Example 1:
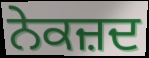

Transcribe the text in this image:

ਨੇਕਜ਼ਦ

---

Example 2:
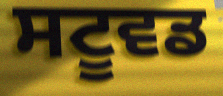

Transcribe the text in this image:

ਸਟੂਵਡ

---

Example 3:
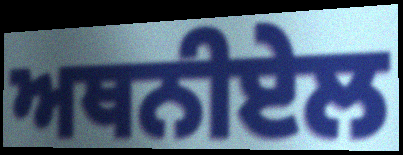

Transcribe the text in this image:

ਅਥਨੀਏਲ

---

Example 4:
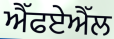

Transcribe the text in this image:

ਐੱਫਏਐੱਲ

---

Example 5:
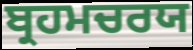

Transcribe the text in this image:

ਬ੍ਰਹਮਚਰਯ